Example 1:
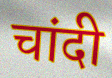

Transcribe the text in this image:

चांदी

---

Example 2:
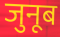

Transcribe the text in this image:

जुनूब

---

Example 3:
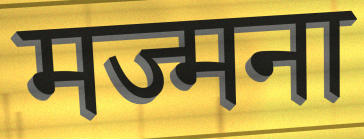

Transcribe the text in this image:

मज्मना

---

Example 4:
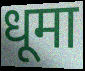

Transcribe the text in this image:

धूमा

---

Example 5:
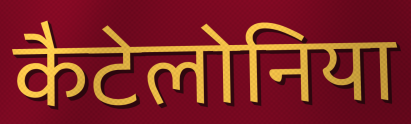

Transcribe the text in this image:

कैटेलोनिया